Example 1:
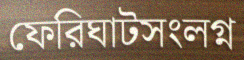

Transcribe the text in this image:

ফেরিঘাটসংলগ্ন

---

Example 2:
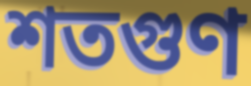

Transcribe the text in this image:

শতগুণ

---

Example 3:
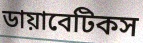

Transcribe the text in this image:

ডায়াবেটিকস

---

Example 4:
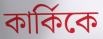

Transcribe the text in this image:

কার্কিকে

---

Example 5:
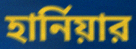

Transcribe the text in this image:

হার্নিয়ার